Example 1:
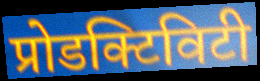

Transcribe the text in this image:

प्रोडक्टिविटी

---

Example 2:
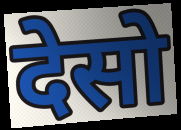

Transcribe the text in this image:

देसो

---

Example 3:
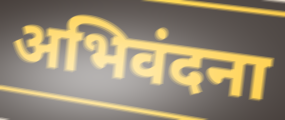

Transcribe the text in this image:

अभिवंदना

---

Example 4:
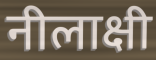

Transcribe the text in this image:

नीलाक्षी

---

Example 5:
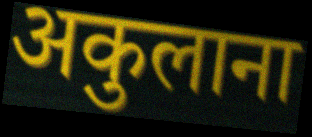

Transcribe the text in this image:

अकुलाना